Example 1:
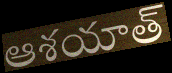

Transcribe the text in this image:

ఆశయాత్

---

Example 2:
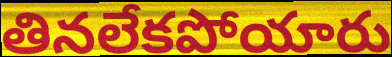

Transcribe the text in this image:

తినలేకపోయారు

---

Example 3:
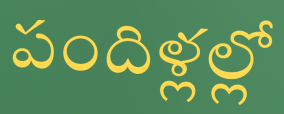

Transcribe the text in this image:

పందిళ్లల్లో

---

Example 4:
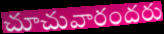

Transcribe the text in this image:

చూచువారందరు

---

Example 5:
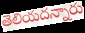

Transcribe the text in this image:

తెలియదన్నారు